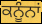
ਕਨੂੰਨਾਂ